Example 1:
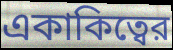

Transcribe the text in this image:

একাকিত্বের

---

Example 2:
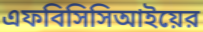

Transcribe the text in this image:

এফবিসিসিআইয়ের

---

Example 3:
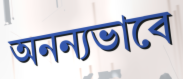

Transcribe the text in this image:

অনন্যভাবে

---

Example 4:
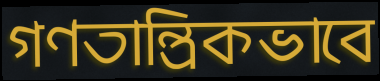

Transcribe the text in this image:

গণতান্ত্রিকভাবে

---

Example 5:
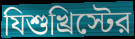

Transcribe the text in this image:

যিশুখ্রিস্টের